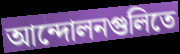
আন্দোলনগুলিতে